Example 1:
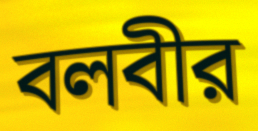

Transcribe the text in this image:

বলবীর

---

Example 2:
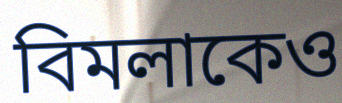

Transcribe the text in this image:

বিমলাকেও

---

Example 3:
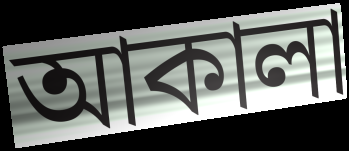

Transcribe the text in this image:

আকালা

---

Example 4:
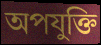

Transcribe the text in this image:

অপযুক্তি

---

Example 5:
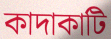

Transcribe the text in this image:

কাদাকাটি